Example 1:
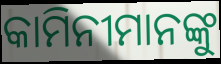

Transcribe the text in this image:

କାମିନୀମାନଙ୍କୁ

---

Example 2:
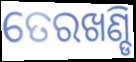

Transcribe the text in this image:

ତେରଖଣ୍ଡି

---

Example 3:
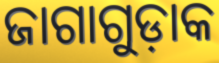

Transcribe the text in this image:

ଜାଗାଗୁଡ଼ାକ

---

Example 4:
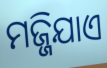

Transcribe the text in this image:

ମଜ୍ଜିଯାଏ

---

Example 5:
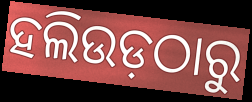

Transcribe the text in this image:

ହଲିଉଡ଼ଠାରୁ